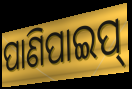
ପାଣିପାଇପ୍